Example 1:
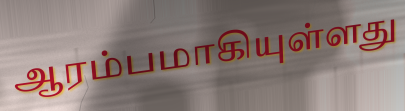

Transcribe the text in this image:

ஆரம்பமாகியுள்ளது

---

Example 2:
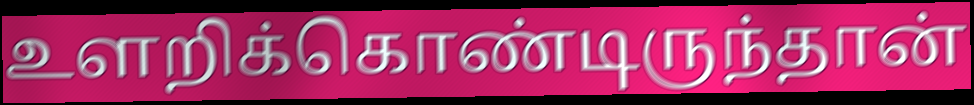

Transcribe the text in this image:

உளறிக்கொண்டிருந்தான்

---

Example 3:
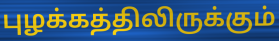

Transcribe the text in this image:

புழக்கத்திலிருக்கும்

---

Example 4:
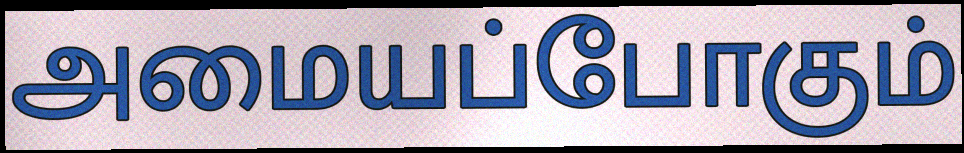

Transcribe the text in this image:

அமையப்போகும்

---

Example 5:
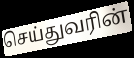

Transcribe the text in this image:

செய்துவரின்